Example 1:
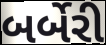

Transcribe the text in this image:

બર્બેરી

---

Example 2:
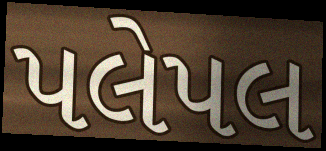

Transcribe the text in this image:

પલેપલ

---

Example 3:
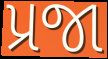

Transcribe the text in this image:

પ્રજા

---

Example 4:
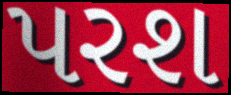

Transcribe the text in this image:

પરશ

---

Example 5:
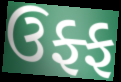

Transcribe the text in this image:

ઉફ્ફ